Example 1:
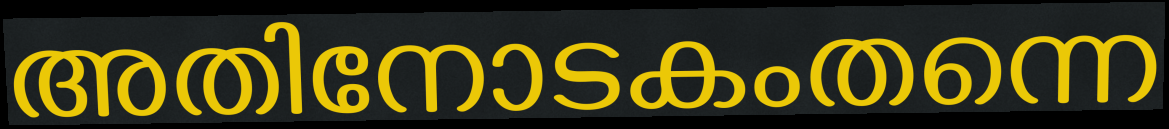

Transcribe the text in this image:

അതിനോടകംതന്നെ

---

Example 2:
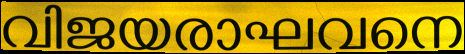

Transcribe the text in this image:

വിജയരാഘവനെ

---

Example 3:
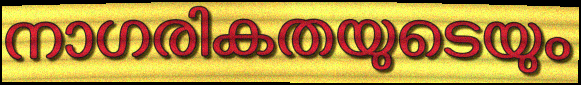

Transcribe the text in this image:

നാഗരികതയുടെയും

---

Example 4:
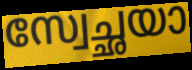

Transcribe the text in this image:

സ്വേച്ഛയാ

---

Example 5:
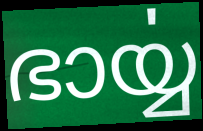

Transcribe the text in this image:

ഭാൎയ്യ